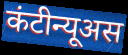
कंटीन्यूअस